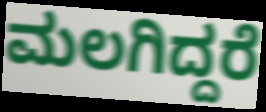
ಮಲಗಿದ್ದರೆ